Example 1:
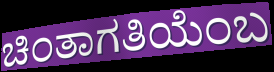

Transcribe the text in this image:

ಚಿಂತಾಗತಿಯೆಂಬ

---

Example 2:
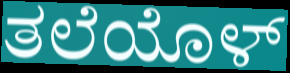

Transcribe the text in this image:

ತಲೆಯೊಳ್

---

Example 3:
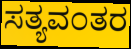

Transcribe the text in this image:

ಸತ್ಯವಂತರ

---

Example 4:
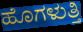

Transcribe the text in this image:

ಹೊಗಳುತ್ತಿ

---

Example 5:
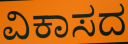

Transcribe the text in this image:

ವಿಕಾಸದ